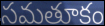
సమతూకం